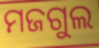
ମଜଗୁଲ